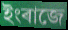
ইংৰাজে